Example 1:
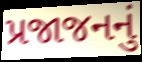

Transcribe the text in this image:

પ્રજાજનનું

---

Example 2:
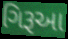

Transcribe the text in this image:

ગિરૂઆ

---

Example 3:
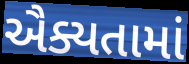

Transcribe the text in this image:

ઐક્યતામાં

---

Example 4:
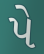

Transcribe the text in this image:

પે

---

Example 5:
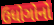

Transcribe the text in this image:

ઉધોગોનો